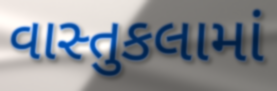
વાસ્તુકલામાં